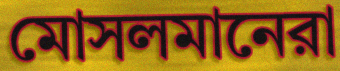
মোসলমানেরা